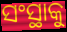
ସଂସ୍ଥାକୁ